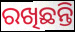
ରଖିଛନ୍ତି